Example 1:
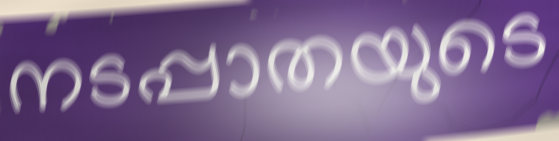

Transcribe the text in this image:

നടപ്പാതയുടെ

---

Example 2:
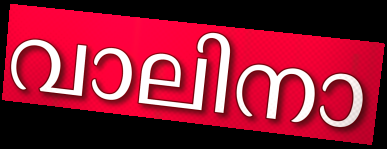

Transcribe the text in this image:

വാലിനാ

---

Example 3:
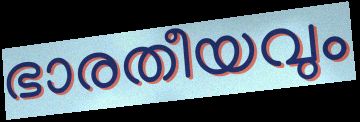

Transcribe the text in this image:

ഭാരതീയവും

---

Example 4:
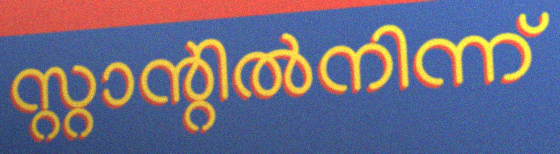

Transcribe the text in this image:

സ്റ്റാന്റിൽനിന്ന്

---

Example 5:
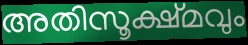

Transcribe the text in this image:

അതിസൂക്ഷ്മവും